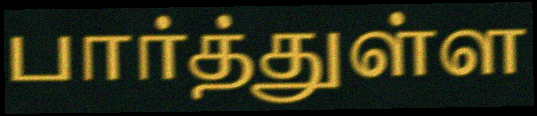
பார்த்துள்ள